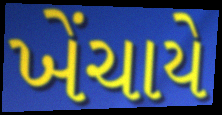
ખેંચાયે